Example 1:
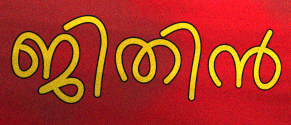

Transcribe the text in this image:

ജിതിൻ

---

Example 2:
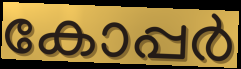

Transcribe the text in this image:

കോപ്പർ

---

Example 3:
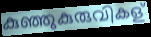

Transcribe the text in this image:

കുഞ്ഞുകുരുവികള്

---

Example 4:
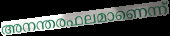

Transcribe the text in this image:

അനന്തരഫലമാണെന്ന്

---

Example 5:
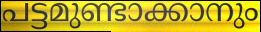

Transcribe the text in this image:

പട്ടമുണ്ടാക്കാനും